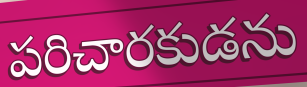
పరిచారకుడను